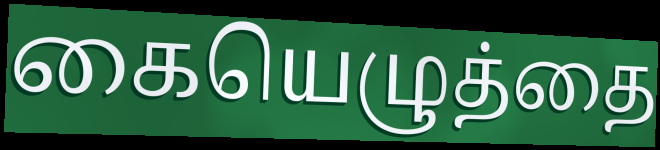
கையெழுத்தை